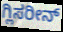
ಗ್ಲಿಸರೀನ್